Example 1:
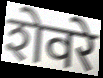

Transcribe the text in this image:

शेवरे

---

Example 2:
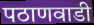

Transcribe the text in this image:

पठाणवाडी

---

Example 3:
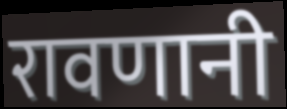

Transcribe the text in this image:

रावणानी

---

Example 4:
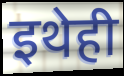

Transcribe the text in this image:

इथेही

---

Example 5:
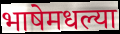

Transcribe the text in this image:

भाषेमधल्या